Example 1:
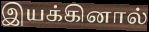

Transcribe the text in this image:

இயக்கினால்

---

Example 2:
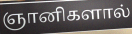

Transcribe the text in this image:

ஞானிகளால்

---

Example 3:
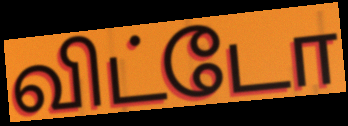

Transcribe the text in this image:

விட்டோ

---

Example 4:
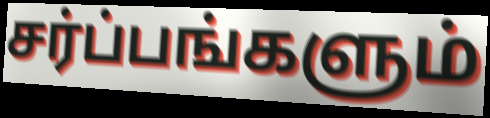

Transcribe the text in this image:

சர்ப்பங்களும்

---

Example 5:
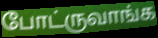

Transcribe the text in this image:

போட்ருவாங்க